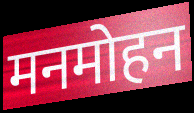
मनमोहन